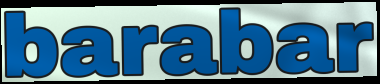
barabar